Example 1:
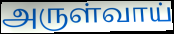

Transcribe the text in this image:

அருள்வாய்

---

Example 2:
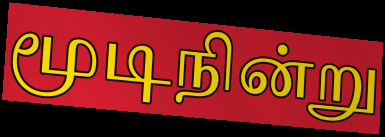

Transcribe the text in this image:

மூடிநின்று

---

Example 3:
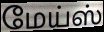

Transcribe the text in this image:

மேய்ஸ்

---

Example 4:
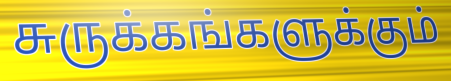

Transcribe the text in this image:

சுருக்கங்களுக்கும்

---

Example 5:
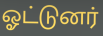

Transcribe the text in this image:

ஓட்டுனர்